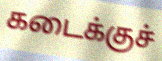
கடைக்குச்